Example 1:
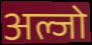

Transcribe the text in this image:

अल्जो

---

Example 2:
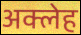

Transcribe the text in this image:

अक्लेह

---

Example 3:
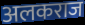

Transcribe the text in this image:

अलकराज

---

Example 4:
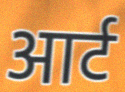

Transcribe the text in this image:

आर्ट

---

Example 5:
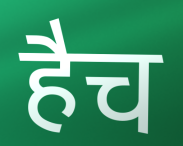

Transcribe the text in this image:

हैच